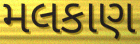
મલકાણ